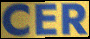
CER